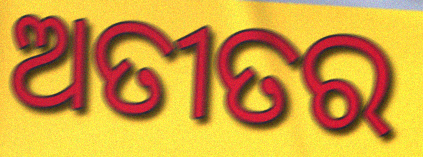
ଅତୀତର